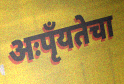
अःपृँयतेचा